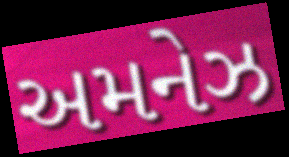
અમનેઝ